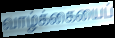
வாழ்க்கையைப்